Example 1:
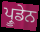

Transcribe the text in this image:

ਪ੍ਰੂਡੇਨ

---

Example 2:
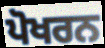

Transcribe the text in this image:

ਪੋਖਰਨ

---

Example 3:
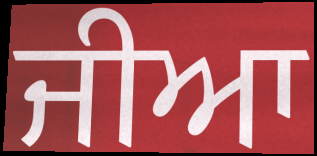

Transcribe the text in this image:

ਜੀਆ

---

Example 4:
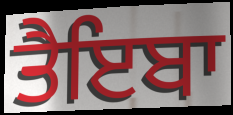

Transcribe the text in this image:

ਤੈਇਬਾ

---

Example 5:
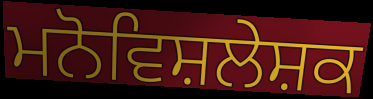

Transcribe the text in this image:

ਮਨੋਵਿਸ਼ਲੇਸ਼ਕ